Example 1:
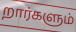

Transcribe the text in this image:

றார்களும்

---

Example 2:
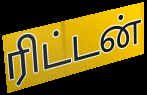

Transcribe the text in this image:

ரிட்டன்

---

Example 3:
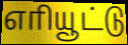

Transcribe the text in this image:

எரியூட்டு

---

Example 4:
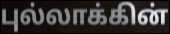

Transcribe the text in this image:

புல்லாக்கின்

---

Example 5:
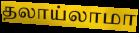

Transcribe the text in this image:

தலாய்லாமா